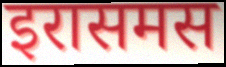
इरासमस